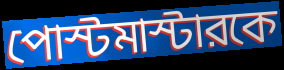
পোস্টমাস্টারকে